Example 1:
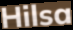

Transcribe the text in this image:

Hilsa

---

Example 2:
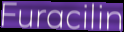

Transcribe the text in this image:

Furacilin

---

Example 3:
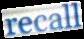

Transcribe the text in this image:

recall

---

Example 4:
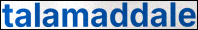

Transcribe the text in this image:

talamaddale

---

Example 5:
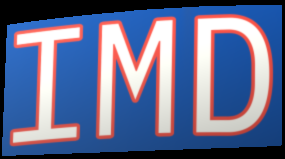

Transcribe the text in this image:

IMD